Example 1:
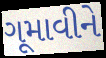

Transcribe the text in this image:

ગૂમાવીને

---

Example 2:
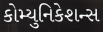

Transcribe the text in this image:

કોમ્યુનિકેશન્સ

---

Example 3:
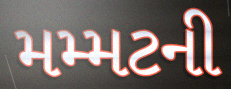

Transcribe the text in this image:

મમ્મટની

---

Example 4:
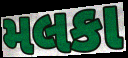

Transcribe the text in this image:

મલકા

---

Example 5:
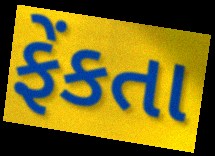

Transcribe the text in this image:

ફેંકતા